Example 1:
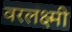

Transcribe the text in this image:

वरलक्ष्‍मी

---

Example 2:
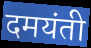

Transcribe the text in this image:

दमयंती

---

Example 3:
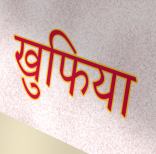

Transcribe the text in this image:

खुफिया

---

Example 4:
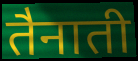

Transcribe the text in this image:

तैनाती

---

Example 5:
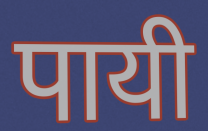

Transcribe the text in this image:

पायी